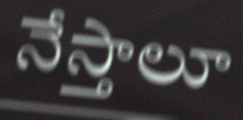
నేస్తాలూ